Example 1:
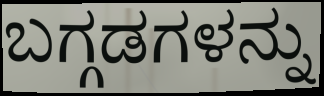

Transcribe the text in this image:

ಬಗ್ಗಡಗಳನ್ನು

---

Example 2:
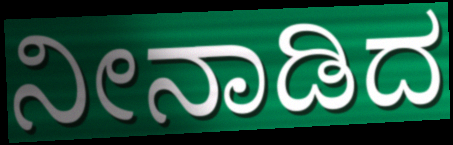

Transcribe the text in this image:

ನೀನಾಡಿದ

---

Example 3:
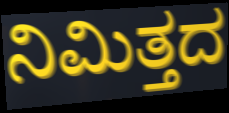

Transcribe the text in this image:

ನಿಮಿತ್ತದ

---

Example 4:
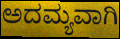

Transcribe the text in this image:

ಅದಮ್ಯವಾಗಿ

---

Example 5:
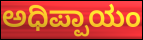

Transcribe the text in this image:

ಅಧಿಪ್ಪಾಯಂ